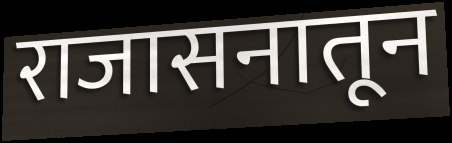
राजासनातून